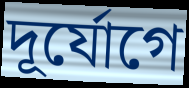
দূর্যোগে